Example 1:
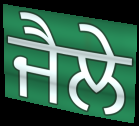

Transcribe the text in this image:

ਜੈਲੇ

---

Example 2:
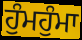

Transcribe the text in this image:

ਹੁੰਮਹੁੰਮਾ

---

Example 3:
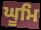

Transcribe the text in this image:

ਘੂਮਿ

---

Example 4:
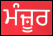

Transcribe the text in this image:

ਮੰਜ਼ੂਰ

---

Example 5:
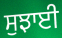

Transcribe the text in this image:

ਸੁਝਾਈ